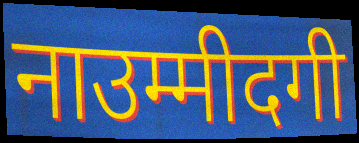
नाउम्मीदगी